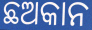
ଛଅକାନ